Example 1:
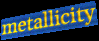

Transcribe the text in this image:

metallicity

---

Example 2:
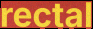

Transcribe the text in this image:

rectal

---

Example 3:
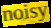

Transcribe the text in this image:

noisy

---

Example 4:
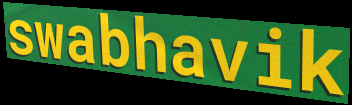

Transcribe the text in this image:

swabhavik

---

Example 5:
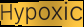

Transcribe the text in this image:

Hypoxic